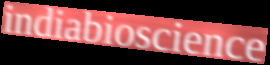
indiabioscience